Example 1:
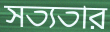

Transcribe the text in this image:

সত্যতার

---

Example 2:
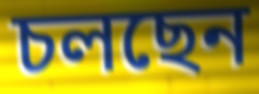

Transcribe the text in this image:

চলছেন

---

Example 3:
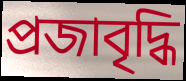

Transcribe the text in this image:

প্রজাবৃদ্ধি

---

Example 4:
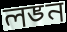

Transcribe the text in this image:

লঙ্ন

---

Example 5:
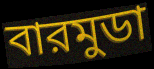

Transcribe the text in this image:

বারমুডা